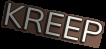
KREEP